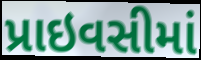
પ્રાઇવસીમાં